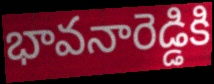
భావనారెడ్డికి